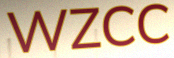
WZCC